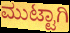
ಮುಟ್ಟಾಗಿ